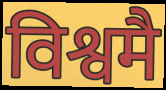
विश्वमै